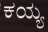
ಕಯ್ಯ